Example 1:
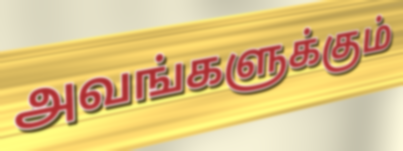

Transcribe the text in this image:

அவங்களுக்கும்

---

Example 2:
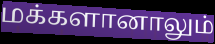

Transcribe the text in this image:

மக்களானாலும்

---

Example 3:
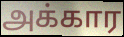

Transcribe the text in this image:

அக்கார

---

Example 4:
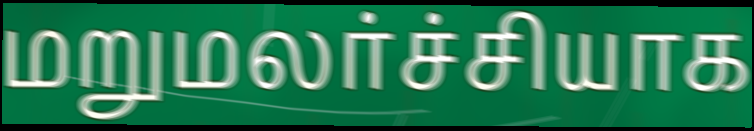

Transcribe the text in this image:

மறுமலர்ச்சியாக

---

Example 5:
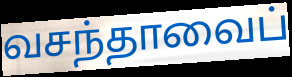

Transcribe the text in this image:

வசந்தாவைப்